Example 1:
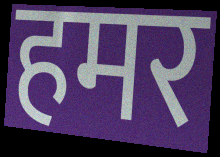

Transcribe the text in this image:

हमर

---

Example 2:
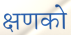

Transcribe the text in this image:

क्षणको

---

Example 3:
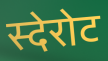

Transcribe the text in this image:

स्देरोट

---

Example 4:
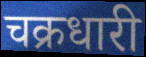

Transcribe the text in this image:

चक्रधारी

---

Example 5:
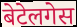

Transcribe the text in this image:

बेटेलगेस